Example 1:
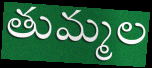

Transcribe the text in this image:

తుమ్మల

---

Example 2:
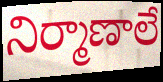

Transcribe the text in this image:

నిర్మాణాలే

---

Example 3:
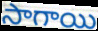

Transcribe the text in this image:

సాగాయి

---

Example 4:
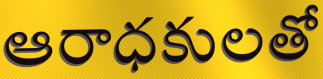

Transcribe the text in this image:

ఆరాధకులతో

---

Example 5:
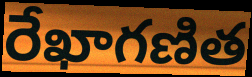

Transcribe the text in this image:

రేఖాగణిత